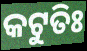
କଟୁତିଃ